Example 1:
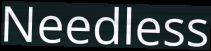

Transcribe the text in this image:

Needless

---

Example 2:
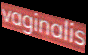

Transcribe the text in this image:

vaginalis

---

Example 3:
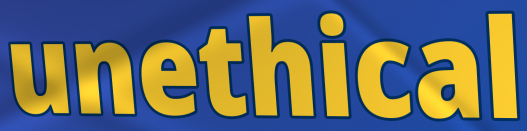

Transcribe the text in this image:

unethical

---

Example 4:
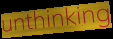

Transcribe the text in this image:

unthinking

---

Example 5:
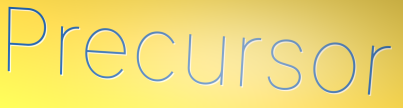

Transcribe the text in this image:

Precursor